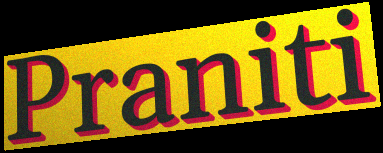
Praniti